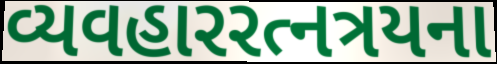
વ્યવહારરત્નત્રયના